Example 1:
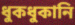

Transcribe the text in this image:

ধুকধুকানি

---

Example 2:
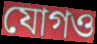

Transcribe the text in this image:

যোগও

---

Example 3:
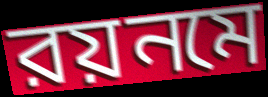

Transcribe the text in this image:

রয়নমে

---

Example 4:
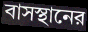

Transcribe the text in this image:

বাসস্থানের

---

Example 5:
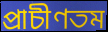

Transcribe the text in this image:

প্রাচীণতম